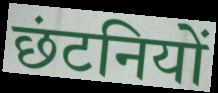
छंटनियों